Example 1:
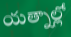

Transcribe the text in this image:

యత్నాల్లో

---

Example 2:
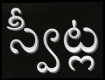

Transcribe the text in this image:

స్వీట్ల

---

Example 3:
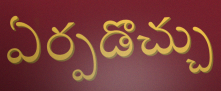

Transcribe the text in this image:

ఏర్పడొచ్చు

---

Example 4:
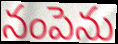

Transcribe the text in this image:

నంపెను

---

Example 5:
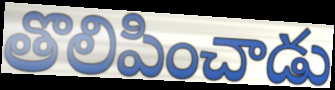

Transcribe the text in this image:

తొలిపించాడు